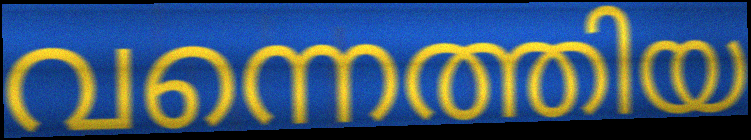
വന്നെത്തിയ